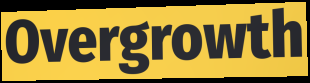
Overgrowth